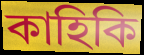
কাহিকি